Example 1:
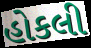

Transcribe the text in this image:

હોકલી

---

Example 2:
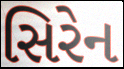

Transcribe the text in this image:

સિરેન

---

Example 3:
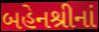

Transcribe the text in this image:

બહેનશ્રીનાં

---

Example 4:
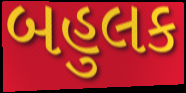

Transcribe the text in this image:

બહુલક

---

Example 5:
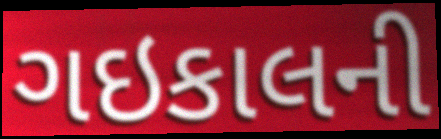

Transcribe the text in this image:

ગઇકાલની